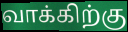
வாக்கிற்கு